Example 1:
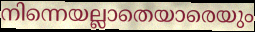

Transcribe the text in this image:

നിന്നെയല്ലാതെയാരെയും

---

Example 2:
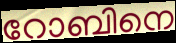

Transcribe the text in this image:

റോബിനെ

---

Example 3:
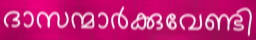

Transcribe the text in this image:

ദാസന്മാർക്കുവേണ്ടി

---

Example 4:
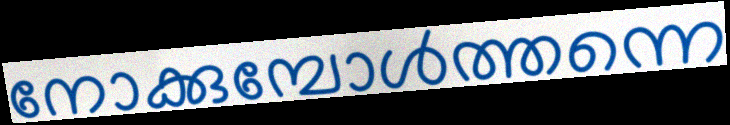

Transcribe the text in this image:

നോക്കുമ്പോൾത്തന്നെ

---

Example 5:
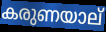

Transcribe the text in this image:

കരുണയാല്